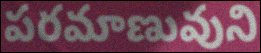
పరమాణువుని